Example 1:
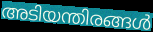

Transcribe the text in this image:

അടിയന്തിരങ്ങൾ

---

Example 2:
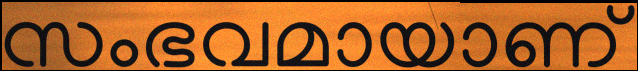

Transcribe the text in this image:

സംഭവമായാണ്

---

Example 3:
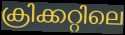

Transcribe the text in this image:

ക്രിക്കറ്റിലെ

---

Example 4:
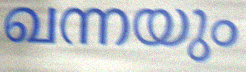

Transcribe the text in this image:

ഖന്നയും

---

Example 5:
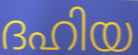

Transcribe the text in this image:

ദഹിയ